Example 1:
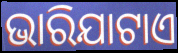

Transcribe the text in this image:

ଭାରିଯାଟାଏ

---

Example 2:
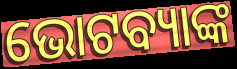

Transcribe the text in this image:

ଭୋଟବ୍ୟାଙ୍କ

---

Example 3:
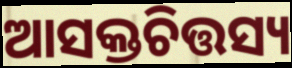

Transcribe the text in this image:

ଆସକ୍ତଚିତ୍ତସ୍ୟ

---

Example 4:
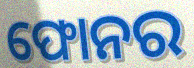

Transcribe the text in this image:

ଫୋନର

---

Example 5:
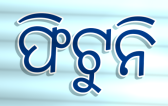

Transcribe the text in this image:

ଫିଟୁନି